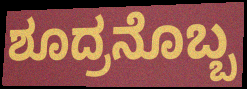
ಶೂದ್ರನೊಬ್ಬ